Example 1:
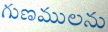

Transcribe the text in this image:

గుణములను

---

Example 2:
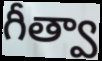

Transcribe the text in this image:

గీత్వా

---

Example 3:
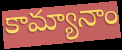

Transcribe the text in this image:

కామ్యానాం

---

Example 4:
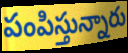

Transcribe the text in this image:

పంపిస్తున్నారు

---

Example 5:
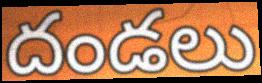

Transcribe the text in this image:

దండలు